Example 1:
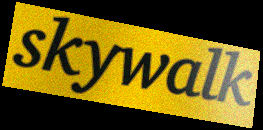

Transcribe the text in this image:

skywalk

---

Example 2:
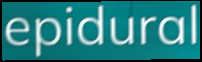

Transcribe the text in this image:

epidural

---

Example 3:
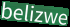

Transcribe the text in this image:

belizwe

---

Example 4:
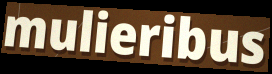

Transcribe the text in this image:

mulieribus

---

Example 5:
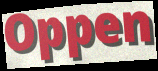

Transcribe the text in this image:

Oppen